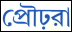
প্রৌঢ়রা